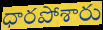
ధారపోశారు